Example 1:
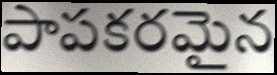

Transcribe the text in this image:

పాపకరమైన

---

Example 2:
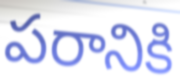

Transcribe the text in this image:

పరానికి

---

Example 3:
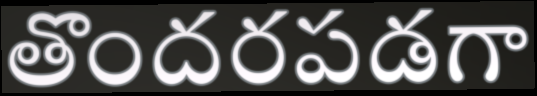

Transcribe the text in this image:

తొందరపడగా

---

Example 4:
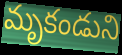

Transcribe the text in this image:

మృకండుని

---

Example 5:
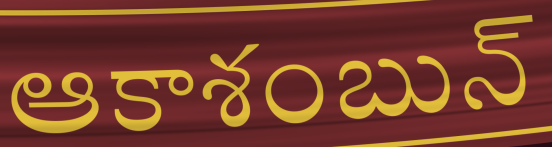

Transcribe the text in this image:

ఆకాశంబున్